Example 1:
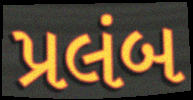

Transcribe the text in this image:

પ્રલંબ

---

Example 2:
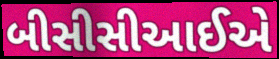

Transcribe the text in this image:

બીસીસીઆઈએ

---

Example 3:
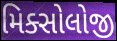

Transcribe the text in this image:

મિક્સોલોજી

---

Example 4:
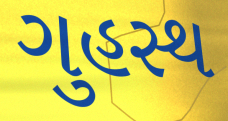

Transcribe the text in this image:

ગુહસ્થ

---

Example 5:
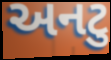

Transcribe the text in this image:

અનટુ